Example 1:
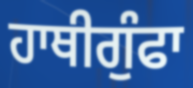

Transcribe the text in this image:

ਹਾਥੀਗੁੰਫਾ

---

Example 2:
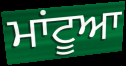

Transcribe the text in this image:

ਮਾਂਟੂਆ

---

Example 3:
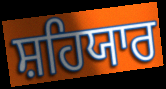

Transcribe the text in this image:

ਸ਼ਹਿਯਾਰ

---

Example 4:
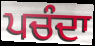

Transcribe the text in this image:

ਪਚੰਦਾ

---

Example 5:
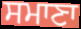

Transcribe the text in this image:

ਸਮਾਣਾ